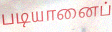
படியானைப்